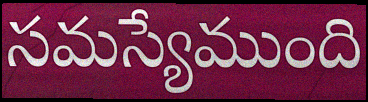
సమస్యేముంది